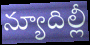
న్యూదిల్లీ